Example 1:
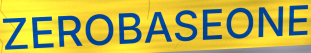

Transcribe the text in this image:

ZEROBASEONE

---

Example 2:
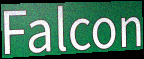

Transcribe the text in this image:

Falcon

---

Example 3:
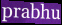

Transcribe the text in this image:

prabhu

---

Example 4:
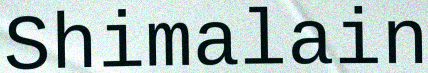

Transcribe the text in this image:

Shimalain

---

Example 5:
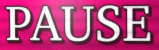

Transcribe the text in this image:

PAUSE